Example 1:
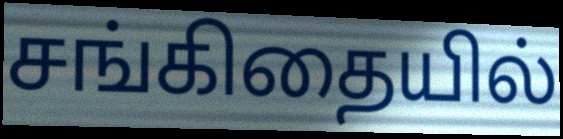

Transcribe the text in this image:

சங்கிதையில்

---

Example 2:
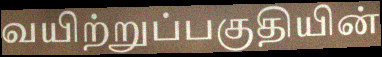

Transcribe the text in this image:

வயிற்றுப்பகுதியின்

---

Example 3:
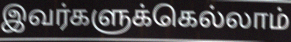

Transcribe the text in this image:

இவர்களுக்கெல்லாம்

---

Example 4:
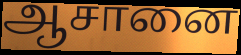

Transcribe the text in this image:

ஆசானை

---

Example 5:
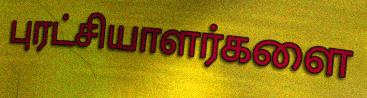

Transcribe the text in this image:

புரட்சியாளர்களை